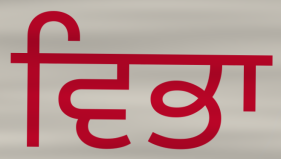
ਵਿਭਾ